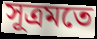
সূত্রমতে